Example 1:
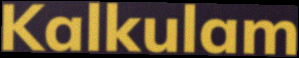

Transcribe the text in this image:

Kalkulam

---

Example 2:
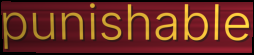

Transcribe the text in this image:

punishable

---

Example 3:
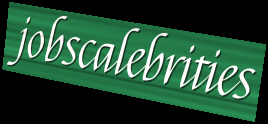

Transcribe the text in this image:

jobscalebrities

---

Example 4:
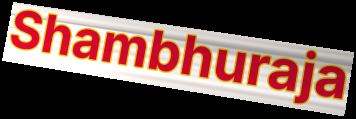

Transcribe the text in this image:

Shambhuraja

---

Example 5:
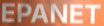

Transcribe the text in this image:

EPANET